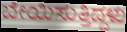
ಬೇಯಿಸುತ್ತಿದ್ದಳು